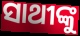
ସାଥୀଙ୍କୁ